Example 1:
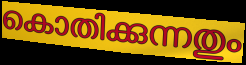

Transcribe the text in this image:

കൊതിക്കുന്നതും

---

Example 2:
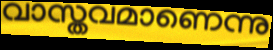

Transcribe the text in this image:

വാസ്തവമാണെന്നു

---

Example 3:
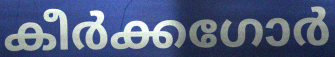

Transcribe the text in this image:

കീർക്കഗോർ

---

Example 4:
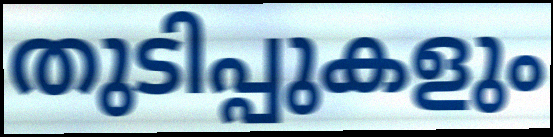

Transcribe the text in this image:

തുടിപ്പുകളും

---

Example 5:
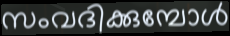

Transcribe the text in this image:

സംവദിക്കുമ്പോൾ